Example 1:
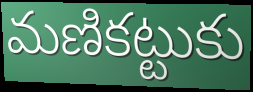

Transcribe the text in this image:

మణికట్టుకు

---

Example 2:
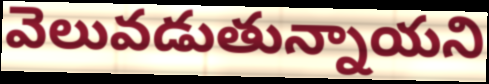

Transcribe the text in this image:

వెలువడుతున్నాయని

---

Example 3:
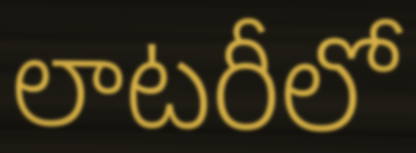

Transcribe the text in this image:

లాటరీలో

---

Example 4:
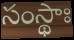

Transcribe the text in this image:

సంస్థాః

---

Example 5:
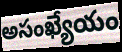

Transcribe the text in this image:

అసంఖ్యేయం